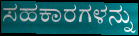
ಸಹಕಾರಗಳನ್ನು